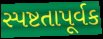
સ્પષ્ટતાપૂર્વક